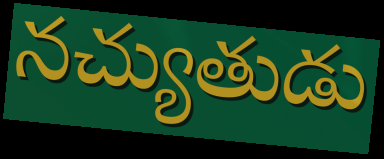
నచ్యుతుడు